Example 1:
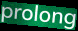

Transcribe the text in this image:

prolong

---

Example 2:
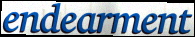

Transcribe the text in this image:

endearment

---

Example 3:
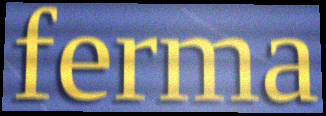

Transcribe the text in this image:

ferma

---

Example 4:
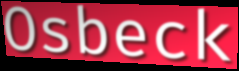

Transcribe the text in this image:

Osbeck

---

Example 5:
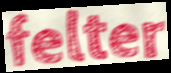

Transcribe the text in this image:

felter